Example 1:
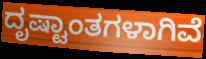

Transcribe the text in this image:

ದೃಷ್ಟಾಂತಗಳಾಗಿವೆ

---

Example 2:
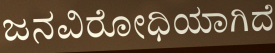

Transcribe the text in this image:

ಜನವಿರೋಧಿಯಾಗಿದೆ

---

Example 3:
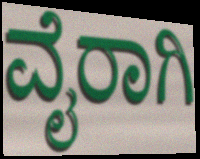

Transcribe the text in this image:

ವೈರಾಗಿ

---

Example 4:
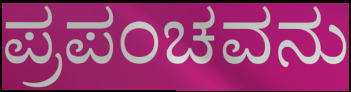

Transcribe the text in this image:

ಪ್ರಪಂಚವನು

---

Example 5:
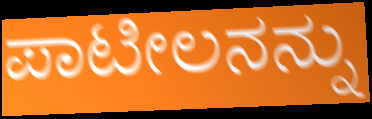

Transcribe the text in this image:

ಪಾಟೀಲನನ್ನು